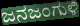
ಜನಜಂಗುಳಿ